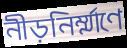
নীড়নির্ম্মাণে